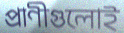
প্রাণীগুলোই